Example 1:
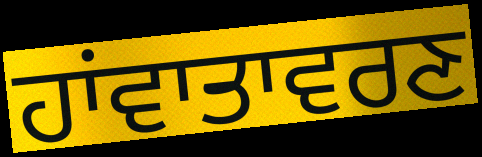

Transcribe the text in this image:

ਹਾਂਵਾਤਾਵਰਣ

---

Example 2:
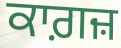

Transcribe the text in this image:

ਕਾਗ਼ਜ਼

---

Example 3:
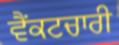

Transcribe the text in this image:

ਵੈਂਕਟਚਾਰੀ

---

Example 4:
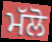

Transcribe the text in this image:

ਮੱਲੋ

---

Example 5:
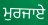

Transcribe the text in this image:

ਮੁਰਜਾਏ